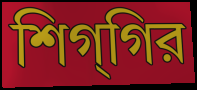
শিগ্‌গির